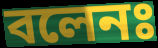
বলেনঃ